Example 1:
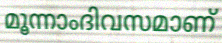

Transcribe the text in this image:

മൂന്നാംദിവസമാണ്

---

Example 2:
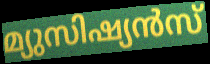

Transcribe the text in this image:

മ്യുസിഷ്യൻസ്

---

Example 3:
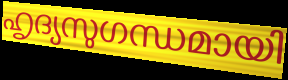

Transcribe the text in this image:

ഹൃദ്യസുഗന്ധമായി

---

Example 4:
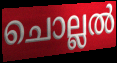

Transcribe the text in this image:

ചൊല്ലൽ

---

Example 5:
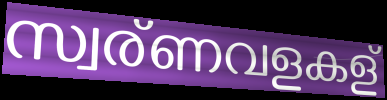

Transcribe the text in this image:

സ്വര്ണവളകള്